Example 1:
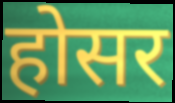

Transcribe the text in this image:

होसर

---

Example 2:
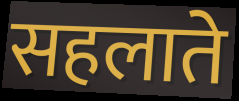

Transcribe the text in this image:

सहलाते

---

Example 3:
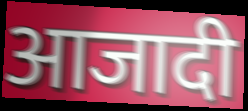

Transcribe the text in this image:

आजादी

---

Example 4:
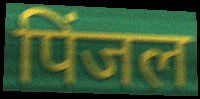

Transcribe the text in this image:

पिंजल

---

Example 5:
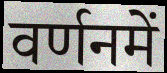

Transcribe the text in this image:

वर्णनमें